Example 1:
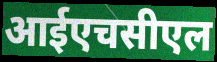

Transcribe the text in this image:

आईएचसीएल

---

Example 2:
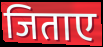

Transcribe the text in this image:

जिताए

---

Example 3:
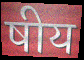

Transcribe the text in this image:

षीय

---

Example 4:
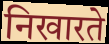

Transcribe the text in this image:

निखारते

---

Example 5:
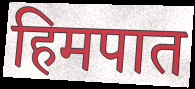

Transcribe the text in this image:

हिमपात